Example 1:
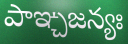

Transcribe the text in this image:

పాఞ్చజన్యః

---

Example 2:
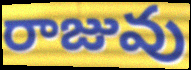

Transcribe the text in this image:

రాజువు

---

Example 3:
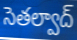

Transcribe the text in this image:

సెతల్వాద్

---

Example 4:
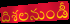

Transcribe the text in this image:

దిశలనుండీ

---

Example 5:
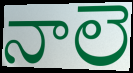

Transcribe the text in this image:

నాలె